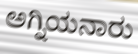
ಅಗ್ನಿಯನಾರು